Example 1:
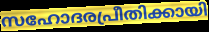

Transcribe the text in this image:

സഹോദരപ്രീതിക്കായി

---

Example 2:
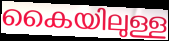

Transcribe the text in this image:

കൈയിലുള്ള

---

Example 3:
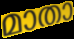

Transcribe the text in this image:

മാതാ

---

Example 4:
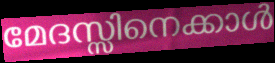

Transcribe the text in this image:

മേദസ്സിനെക്കാൾ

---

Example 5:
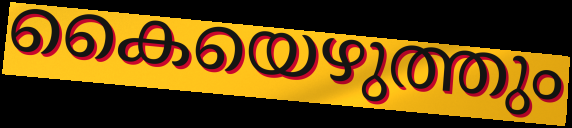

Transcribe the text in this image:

കൈയെഴുത്തും